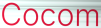
Cocom